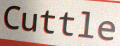
Cuttle